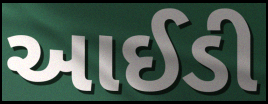
આઈડી